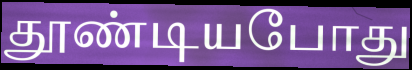
தூண்டியபோது